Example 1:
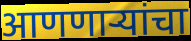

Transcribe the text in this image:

आणणाऱ्यांचा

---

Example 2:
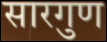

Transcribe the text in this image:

सारगुण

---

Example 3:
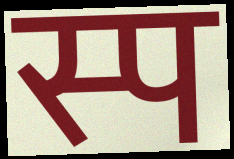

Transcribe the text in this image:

स्प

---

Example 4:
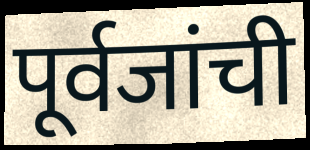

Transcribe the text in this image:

पूर्वजांची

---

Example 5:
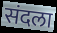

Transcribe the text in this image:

संदला